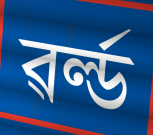
ৱৰ্ল্ড